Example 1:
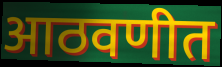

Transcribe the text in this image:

आठवणीत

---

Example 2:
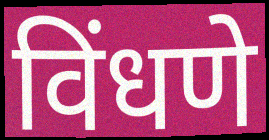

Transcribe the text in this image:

विंधणे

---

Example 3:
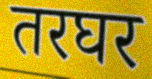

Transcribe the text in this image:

तरघर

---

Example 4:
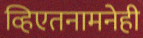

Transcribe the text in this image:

व्हिएतनामनेही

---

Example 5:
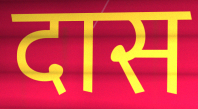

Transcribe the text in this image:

दास